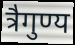
त्रैगुण्य